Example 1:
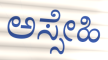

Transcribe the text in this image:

ಅಸ್ಸೇಹಿ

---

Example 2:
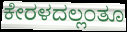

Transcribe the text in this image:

ಕೇರಳದಲ್ಲಂತೂ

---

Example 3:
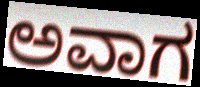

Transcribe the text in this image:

ಅವಾಗ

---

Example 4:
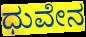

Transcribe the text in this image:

ಧುವೇನ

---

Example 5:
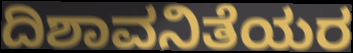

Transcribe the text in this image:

ದಿಶಾವನಿತೆಯರ